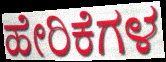
ಹೇರಿಕೆಗಳ